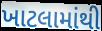
ખાટલામાંથી